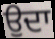
ਉਦਾ